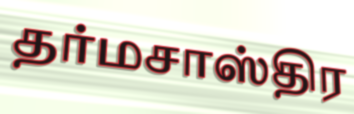
தர்மசாஸ்திர